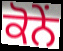
ਕੋਨੇਂ